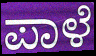
ಪಾಳೆ